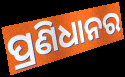
ପ୍ରଣିଧାନର